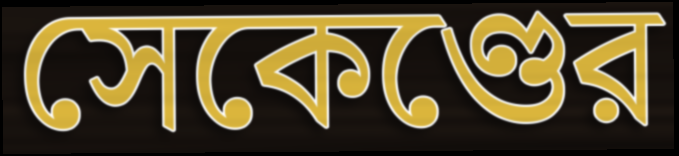
সেকেণ্ডের